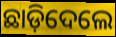
ଛାଡ଼ିଦେଲେ